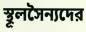
স্থূলসৈন্যদের